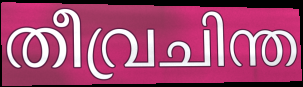
തീവ്രചിന്ത